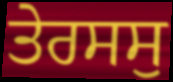
ਤੇਰਸਸੁ